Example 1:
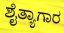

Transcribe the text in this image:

ಶೈತ್ಯಾಗಾರ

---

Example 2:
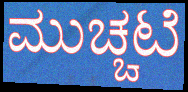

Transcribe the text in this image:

ಮುಚ್ಚಟೆ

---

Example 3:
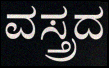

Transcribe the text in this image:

ವಸ್ತ್ರದ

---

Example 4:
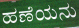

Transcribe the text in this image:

ಹಣೆಯನು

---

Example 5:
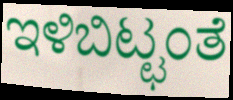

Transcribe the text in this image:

ಇಳಿಬಿಟ್ಟಂತೆ